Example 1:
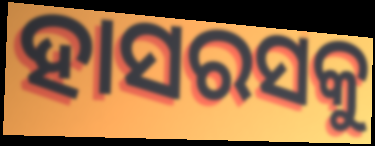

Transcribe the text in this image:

ହାସରସକୁ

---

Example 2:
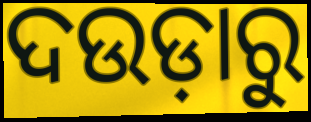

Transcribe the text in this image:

ଦଉଡ଼ାରୁ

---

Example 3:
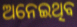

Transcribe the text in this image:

ଅନେଇଥିବ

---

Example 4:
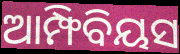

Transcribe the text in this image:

ଆମ୍ଫିବିୟସ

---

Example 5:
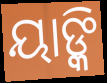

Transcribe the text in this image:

ୟାଙ୍କି